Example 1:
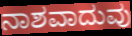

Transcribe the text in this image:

ನಾಶವಾದುವು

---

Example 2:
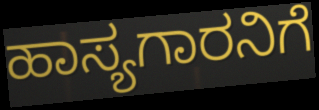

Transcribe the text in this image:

ಹಾಸ್ಯಗಾರನಿಗೆ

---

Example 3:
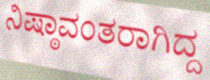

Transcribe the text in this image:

ನಿಷ್ಠಾವಂತರಾಗಿದ್ದ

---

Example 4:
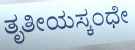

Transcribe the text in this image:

ತೃತೀಯಸ್ಕಂಧೇ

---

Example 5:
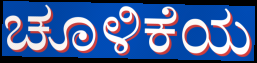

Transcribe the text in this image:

ಚೂಳಿಕೆಯ